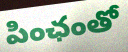
పింఛంతో